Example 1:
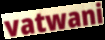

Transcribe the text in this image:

vatwani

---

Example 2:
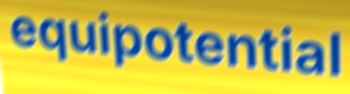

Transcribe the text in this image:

equipotential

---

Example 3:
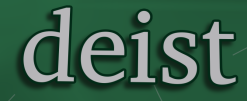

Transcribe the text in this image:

deist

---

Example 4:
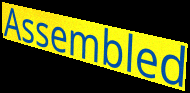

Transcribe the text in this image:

Assembled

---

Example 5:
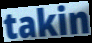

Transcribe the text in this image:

takin